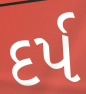
દર્પ